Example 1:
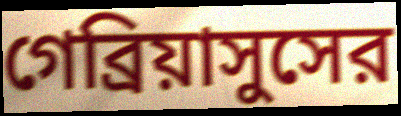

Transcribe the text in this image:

গেব্রিয়াসুসের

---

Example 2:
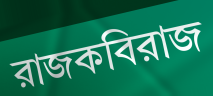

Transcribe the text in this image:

রাজকবিরাজ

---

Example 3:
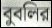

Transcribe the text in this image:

বুবলির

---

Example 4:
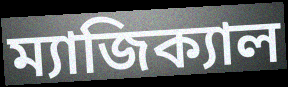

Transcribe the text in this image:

ম্যাজিক্যাল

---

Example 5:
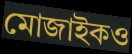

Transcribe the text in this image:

মোজাইকও